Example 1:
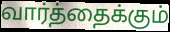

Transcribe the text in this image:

வார்த்தைக்கும்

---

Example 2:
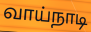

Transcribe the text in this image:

வாய்நாடி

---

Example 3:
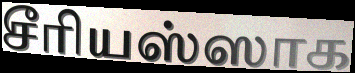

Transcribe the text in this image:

சீரியஸ்ஸாக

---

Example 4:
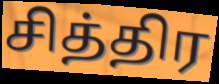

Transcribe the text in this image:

சித்திர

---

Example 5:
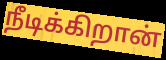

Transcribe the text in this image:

நீடிக்கிறான்